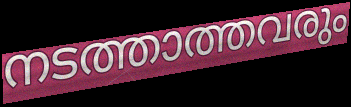
നടത്താത്തവരും